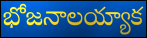
భోజనాలయ్యాక